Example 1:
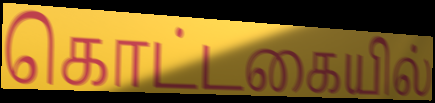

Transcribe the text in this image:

கொட்டகையில்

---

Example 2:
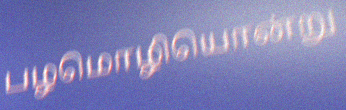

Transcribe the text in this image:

பழமொழியொன்று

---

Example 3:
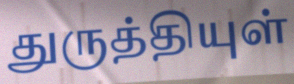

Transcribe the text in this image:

துருத்தியுள்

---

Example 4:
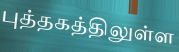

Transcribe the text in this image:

புத்தகத்திலுள்ள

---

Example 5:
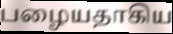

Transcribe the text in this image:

பழையதாகிய